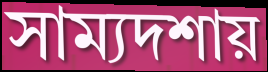
সাম্যদশায়